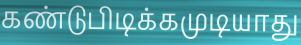
கண்டுபிடிக்கமுடியாது